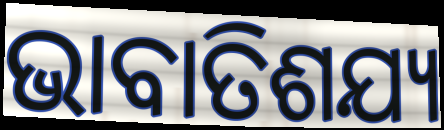
ଭାବାତିଶଯ୍ୟ